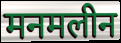
मनमलीन